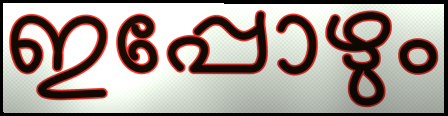
ഇപ്പോഴും